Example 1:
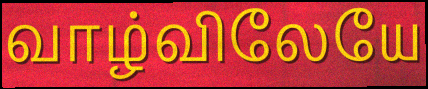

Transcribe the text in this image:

வாழ்விலேயே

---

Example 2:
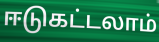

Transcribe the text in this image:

ஈடுகட்டலாம்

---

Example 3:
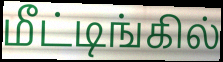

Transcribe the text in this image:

மீட்டிங்கில்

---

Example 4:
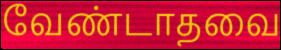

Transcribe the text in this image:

வேண்டாதவை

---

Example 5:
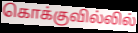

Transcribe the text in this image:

கொக்குவில்லில்